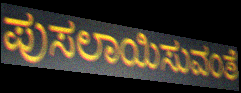
ಪುಸಲಾಯಿಸುವಂತೆ